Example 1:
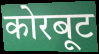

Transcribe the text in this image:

कोरबूट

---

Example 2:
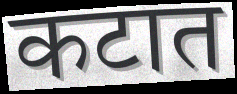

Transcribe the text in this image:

कटात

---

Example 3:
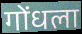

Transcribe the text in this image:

गोंधला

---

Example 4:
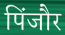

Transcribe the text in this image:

पिंजौर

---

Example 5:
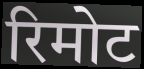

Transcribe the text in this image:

रिमोट